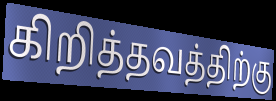
கிறித்தவத்திற்கு